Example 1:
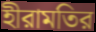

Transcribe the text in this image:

হীরামতির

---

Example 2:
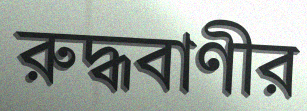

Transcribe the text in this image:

রুদ্ধবাণীর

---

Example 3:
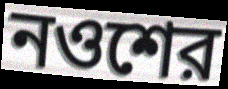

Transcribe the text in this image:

নওশের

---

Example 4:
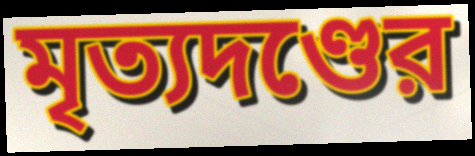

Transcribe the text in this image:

মৃত্যদণ্ডের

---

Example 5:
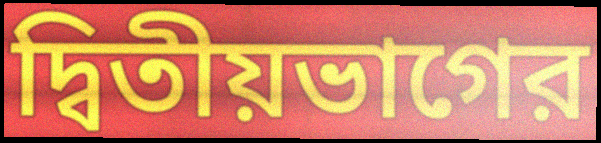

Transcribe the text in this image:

দ্বিতীয়ভাগের